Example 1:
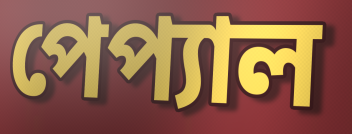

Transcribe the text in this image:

পেপ্যাল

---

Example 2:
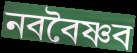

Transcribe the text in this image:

নববৈষ্ণব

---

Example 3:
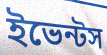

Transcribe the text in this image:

ইভেন্টস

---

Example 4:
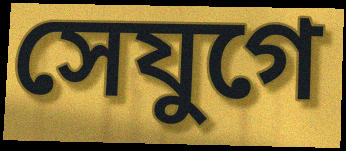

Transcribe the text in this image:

সেযুগে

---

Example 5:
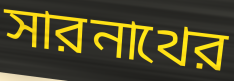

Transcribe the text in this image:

সারনাথের